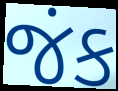
જંક